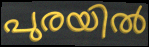
പുരയിൽ